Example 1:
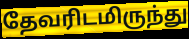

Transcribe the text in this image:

தேவரிடமிருந்து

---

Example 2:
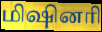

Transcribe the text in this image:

மிஷினரி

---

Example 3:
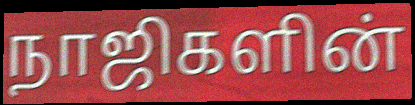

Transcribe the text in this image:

நாஜிகளின்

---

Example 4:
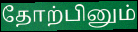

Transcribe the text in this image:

தோற்பினும்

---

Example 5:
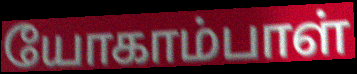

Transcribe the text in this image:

யோகாம்பாள்